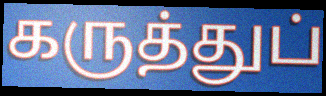
கருத்துப்